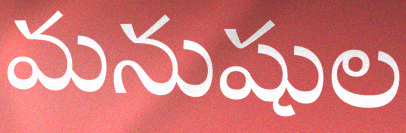
మనుషుల